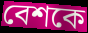
বেশকে